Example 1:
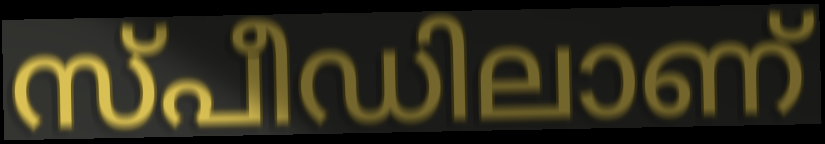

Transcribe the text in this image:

സ്പീഡിലാണ്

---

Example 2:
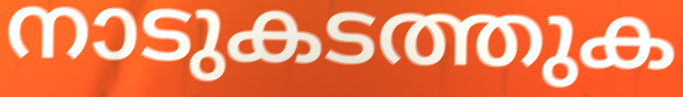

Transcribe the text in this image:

നാടുകടത്തുക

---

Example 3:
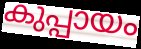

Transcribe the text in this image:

കുപ്പായം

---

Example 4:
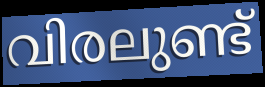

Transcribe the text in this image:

വിരലുണ്ട്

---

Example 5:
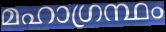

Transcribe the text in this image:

മഹാഗ്രന്ഥം